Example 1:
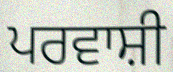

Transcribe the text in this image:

ਪਰਵਾਸ਼ੀ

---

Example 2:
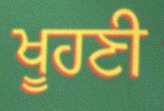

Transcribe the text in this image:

ਖੂਹਣੀ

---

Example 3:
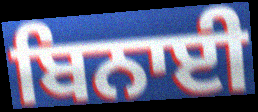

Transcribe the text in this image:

ਬਿਨਾਈ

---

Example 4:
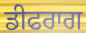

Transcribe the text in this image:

ਡੀਫਰਾਗ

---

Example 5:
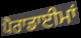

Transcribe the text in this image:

ਪੈਰਾਡਾਈਮਾਂ